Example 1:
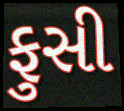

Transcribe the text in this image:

ફુસી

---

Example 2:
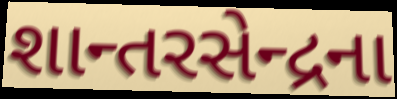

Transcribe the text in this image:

શાન્તરસેન્દ્રના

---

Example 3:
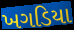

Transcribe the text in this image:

ખગડિયા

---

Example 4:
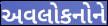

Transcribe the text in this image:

અવલોકનોને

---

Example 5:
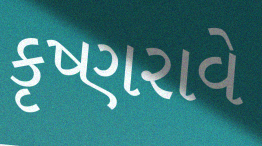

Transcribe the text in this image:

કૃષ્ણરાવે